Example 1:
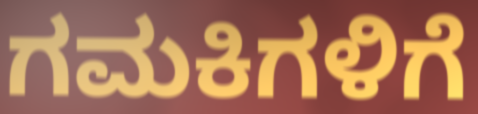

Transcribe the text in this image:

ಗಮಕಿಗಳಿಗೆ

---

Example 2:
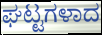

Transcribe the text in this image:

ಘಟ್ಟಗಳಾದ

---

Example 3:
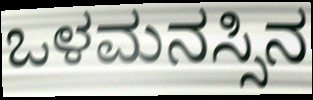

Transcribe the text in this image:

ಒಳಮನಸ್ಸಿನ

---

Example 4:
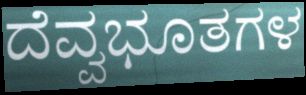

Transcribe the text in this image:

ದೆವ್ವಭೂತಗಳ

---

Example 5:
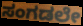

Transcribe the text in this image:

ಸಂಗಡಲೇ